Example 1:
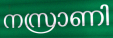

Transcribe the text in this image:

നസ്രാണി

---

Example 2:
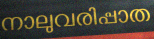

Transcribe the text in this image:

നാലുവരിപ്പാത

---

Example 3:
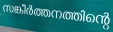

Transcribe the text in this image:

സങ്കീർത്തനത്തിന്റെ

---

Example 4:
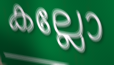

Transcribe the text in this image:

കല്ലോ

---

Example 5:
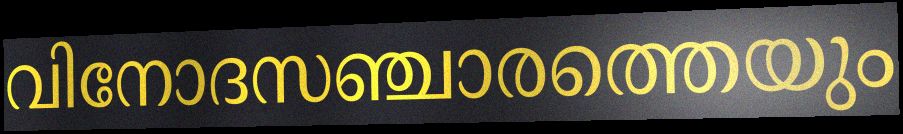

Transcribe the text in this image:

വിനോദസഞ്ചാരത്തെയും